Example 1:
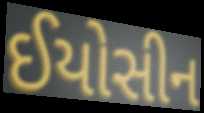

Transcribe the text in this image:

ઈયોસીન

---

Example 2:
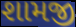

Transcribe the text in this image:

શામજી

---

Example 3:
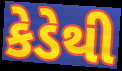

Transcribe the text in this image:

કેડેથી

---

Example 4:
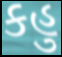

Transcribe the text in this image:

કહુ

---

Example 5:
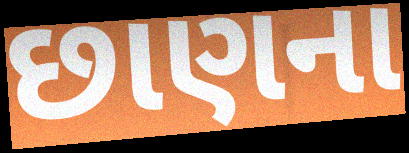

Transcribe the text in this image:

છાણના